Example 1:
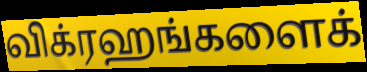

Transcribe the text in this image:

விக்ரஹங்களைக்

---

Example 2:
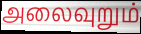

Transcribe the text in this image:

அலைவுறும்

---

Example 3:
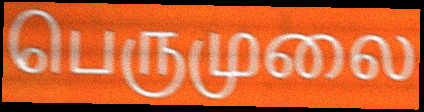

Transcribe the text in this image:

பெருமுலை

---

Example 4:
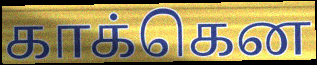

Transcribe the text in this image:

காக்கென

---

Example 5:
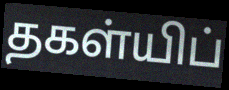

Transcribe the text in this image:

தகள்யிப்